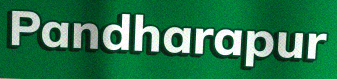
Pandharapur